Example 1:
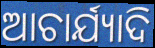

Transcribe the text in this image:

ଆଚାର୍ଯ୍ୟାଦି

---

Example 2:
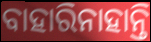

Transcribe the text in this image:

ବାହାରିନାହାନ୍ତି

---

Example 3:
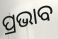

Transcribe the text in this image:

ପ୍ରଭାବ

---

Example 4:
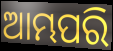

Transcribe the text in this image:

ଆମ୍ଭପରି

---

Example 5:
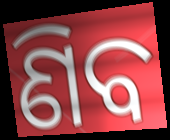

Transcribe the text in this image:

ଣିବ